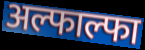
अल्फाल्फा